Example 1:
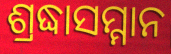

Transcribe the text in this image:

ଶ୍ରଦ୍ଧାସମ୍ମାନ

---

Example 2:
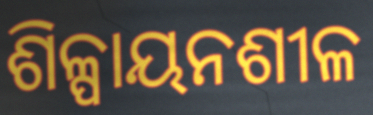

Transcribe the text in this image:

ଶିଳ୍ପାୟନଶୀଳ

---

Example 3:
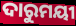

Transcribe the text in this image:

ଦାରୁମୟୀ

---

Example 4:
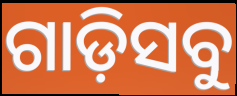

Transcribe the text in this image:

ଗାଡ଼ିସବୁ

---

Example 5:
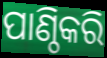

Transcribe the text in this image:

ପାଣ୍ଠିକରି